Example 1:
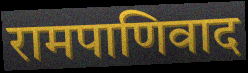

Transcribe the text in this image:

रामपाणिवाद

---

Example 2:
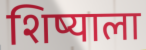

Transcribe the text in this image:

शिष्याला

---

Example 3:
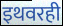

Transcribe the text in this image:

इथवरही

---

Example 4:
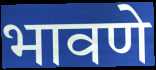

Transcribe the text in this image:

भावणे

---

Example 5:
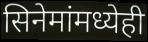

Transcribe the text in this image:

सिनेमांमध्येही